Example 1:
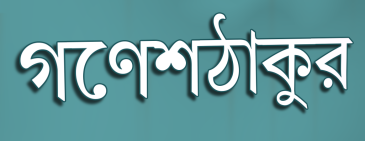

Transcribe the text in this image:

গণেশঠাকুর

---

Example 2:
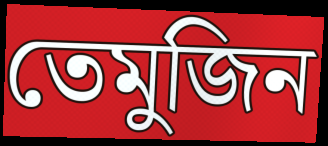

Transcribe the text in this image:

তেমুজিন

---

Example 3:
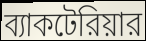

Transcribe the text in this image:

ব্যাকটেরিয়ার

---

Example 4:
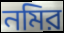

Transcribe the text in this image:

নমির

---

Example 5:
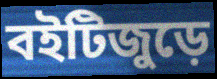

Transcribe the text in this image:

বইটিজুড়ে